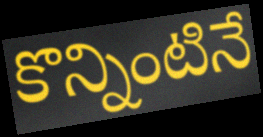
కొన్నింటినే